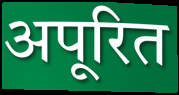
अपूरित